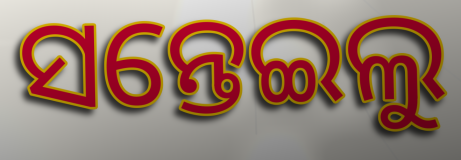
ସନ୍ତେଇଲୁ